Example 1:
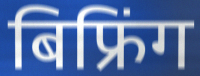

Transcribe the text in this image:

बिफ्रिंग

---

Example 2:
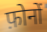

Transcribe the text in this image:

फ़ोनों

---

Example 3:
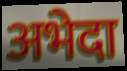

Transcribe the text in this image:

अभेदा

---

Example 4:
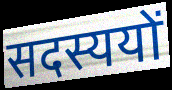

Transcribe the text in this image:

सदस्ययों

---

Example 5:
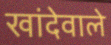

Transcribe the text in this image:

खांदेवाले